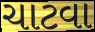
ચાટવા